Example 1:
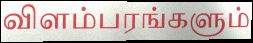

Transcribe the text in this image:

விளம்பரங்களும்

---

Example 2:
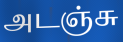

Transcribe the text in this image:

அடஞ்சு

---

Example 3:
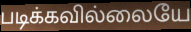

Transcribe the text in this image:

படிக்கவில்லையே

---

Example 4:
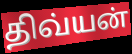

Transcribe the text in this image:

திவ்யன்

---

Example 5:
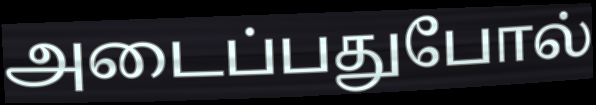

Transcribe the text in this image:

அடைப்பதுபோல்